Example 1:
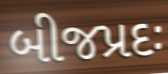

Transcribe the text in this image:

બીજપ્રદઃ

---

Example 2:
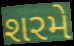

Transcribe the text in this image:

શરમે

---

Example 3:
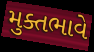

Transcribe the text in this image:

મુક્તભાવે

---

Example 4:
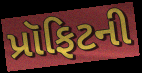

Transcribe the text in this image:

પ્રૉફિટની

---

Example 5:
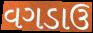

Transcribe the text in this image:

વગડાઉ